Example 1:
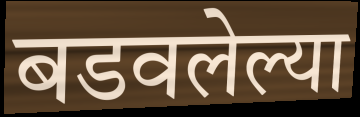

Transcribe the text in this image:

बडवलेल्या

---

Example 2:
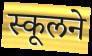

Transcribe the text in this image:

स्कूलने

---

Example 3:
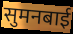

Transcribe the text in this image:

सुमनबाई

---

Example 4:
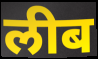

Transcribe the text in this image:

लीब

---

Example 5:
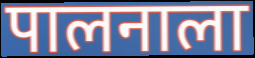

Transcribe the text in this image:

पालनाला